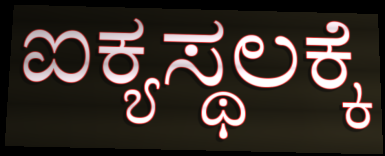
ಐಕ್ಯಸ್ಥಲಕ್ಕೆ